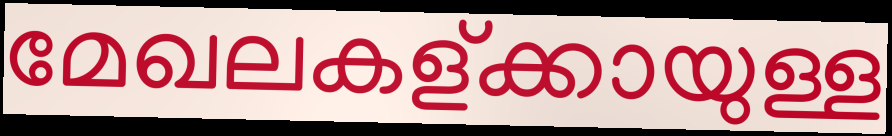
മേഖലകള്ക്കായുള്ള